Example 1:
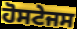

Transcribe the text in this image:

ਹੋਸਟੇਜਸ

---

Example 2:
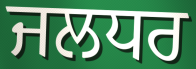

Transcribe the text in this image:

ਜਲਧਰ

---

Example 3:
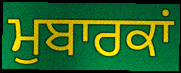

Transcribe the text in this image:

ਮੁਬਾਰਕਾਂ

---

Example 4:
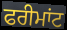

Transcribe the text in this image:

ਫਰੀਮਾਂਟ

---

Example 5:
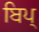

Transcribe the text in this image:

ਬਿਪ੍